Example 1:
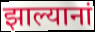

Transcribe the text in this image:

झाल्यानां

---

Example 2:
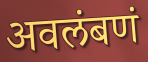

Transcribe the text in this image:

अवलंबणं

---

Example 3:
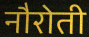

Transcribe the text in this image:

नौरोती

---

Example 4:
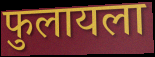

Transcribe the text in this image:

फुलायला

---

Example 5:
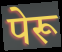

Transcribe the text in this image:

पेरू